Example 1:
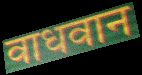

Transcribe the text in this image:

वाधवान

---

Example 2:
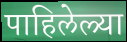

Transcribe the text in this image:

पाहिलेल्या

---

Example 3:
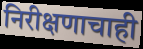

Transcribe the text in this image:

निरीक्षणाचाही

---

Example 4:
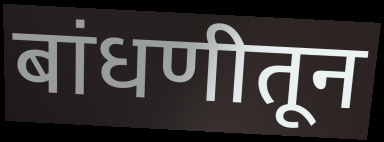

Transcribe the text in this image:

बांधणीतून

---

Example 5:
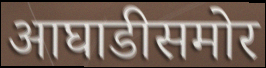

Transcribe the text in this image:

आघाडीसमोर